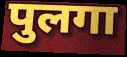
पुलगा